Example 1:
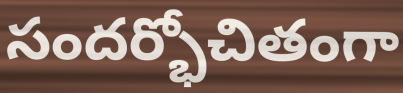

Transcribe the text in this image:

సందర్భోచితంగా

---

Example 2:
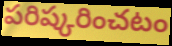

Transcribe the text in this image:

పరిష్కరించటం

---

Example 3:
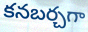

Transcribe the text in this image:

కనబర్చగా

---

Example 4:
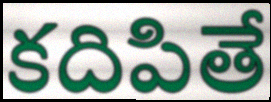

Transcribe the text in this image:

కదిపితే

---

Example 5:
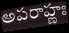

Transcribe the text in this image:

అపరాహ్ణః